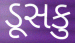
ડૂસકુ